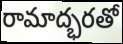
రామాద్భరతో